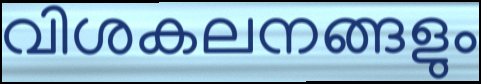
വിശകലനങ്ങളും